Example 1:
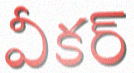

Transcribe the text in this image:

వీకర్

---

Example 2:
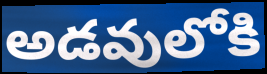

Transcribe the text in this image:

అడవులోకి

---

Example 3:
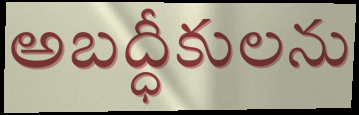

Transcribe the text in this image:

అబద్ధీకులను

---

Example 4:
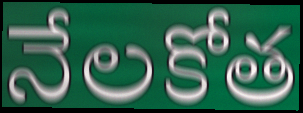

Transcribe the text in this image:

నేలకోత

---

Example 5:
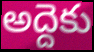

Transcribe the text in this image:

అద్దెకు